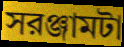
সরঞ্জামটা